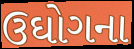
ઉઘોગના